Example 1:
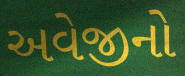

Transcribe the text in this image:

અવેજીનો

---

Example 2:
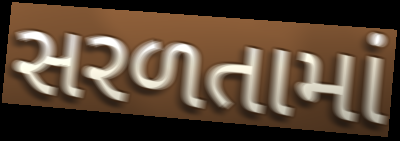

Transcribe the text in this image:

સરળતામાં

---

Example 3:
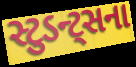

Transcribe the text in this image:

સ્ટુડન્ટ્સના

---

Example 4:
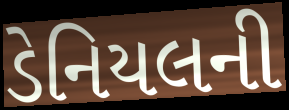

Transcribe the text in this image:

ડેનિયલની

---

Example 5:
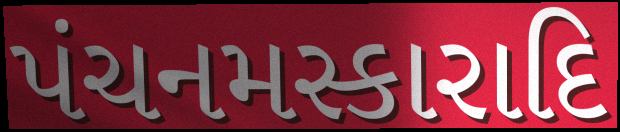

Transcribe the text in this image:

પંચનમસ્કારાદિ